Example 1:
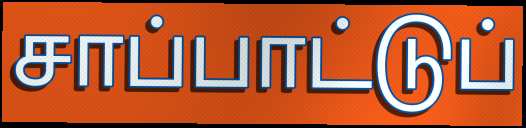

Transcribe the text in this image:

சாப்பாட்டுப்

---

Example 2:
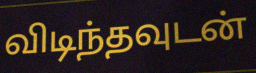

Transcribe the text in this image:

விடிந்தவுடன்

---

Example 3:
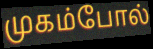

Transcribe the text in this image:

முகம்போல்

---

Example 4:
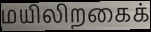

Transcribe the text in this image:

மயிலிறகைக்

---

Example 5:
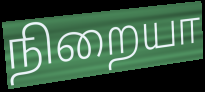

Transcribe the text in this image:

நிறையா